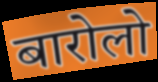
बारोलो